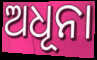
ଅଧୂନା